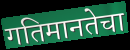
गतिमानतेचा